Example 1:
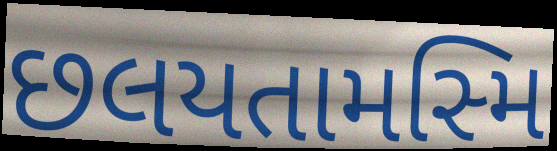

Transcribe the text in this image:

છલયતામસ્મિ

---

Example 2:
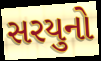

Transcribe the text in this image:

સરયુનો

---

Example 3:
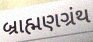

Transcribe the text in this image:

બ્રાહ્મણગ્રંથ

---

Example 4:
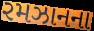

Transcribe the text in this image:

રમઝાનના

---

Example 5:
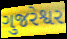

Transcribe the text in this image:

ગુજરેશ્વર